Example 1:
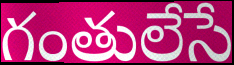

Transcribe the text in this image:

గంతులేసే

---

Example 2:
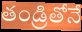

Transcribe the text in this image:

తండ్రితోనే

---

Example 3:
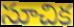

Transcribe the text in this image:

సూచిక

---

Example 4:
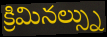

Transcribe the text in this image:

క్రిమినల్స్ను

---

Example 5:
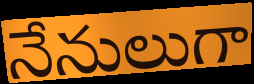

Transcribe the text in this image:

నేనులుగా